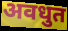
अवधुत